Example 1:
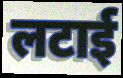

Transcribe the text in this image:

लटाई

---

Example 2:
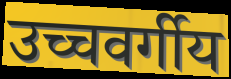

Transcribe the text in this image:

उच्चवर्गीय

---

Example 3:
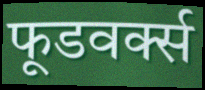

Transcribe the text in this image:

फूडवर्क्स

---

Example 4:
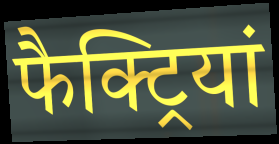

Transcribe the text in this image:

फैक्ट्रियां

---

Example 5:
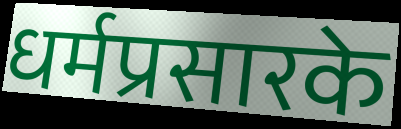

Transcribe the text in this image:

धर्मप्रसारके